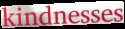
kindnesses